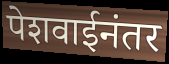
पेशवाईनंतर